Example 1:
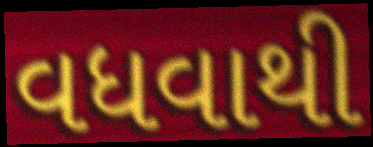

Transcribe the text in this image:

વધવાથી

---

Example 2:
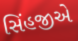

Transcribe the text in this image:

સિંહજીએ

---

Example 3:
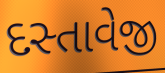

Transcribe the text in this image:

દસ્તાવેજી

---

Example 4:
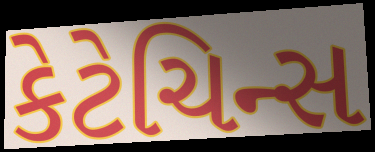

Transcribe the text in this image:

કેટેચિન્સ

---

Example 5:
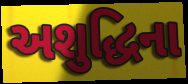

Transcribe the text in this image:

અશુદ્ધિના